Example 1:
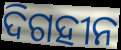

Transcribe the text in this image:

ଦିଗହୀନ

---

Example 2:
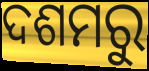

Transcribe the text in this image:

ଦଶମରୁ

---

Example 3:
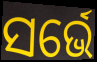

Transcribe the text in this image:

ସର୍ଭେ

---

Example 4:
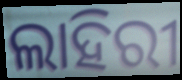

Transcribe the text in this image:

ଲାହିରୀ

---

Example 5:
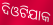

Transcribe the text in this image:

ଦିଓଟିଯାକ